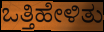
ಒತ್ತಿಹೇಳಿತು